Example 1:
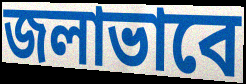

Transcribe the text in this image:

জলাভাবে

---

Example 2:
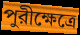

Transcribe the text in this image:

পুরীক্ষেত্রে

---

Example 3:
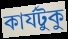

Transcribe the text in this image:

কার্যটুকু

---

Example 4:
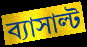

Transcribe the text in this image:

ব্যাসাল্ট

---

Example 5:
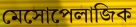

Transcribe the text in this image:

মেসোপেলাজিক